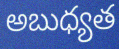
అబుధ్యత